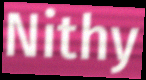
Nithy